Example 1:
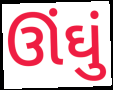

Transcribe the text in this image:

ઊંઘું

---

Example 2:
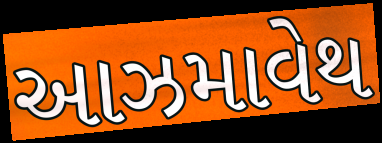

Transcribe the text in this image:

આઝમાવેથ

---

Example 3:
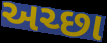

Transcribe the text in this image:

અચ્છા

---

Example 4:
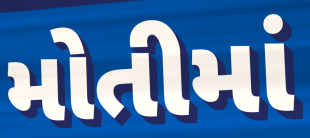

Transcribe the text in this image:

મોતીમાં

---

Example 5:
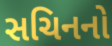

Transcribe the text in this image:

સચિનનો